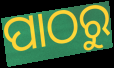
ପାଠରୁ